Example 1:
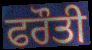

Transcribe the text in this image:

ਫਰੌਤੀ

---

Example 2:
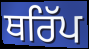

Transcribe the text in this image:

ਥਰਿੱਪ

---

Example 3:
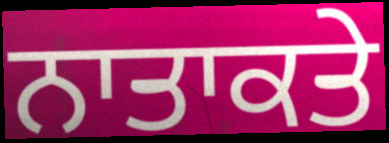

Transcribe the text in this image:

ਨਾਤਾਕਤੇ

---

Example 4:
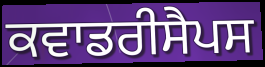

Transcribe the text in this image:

ਕਵਾਡਰੀਸੈਪਸ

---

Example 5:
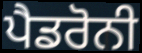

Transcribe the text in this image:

ਪੈਡਰੋਨੀ